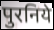
पुरनिये